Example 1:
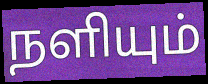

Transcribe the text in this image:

நளியும்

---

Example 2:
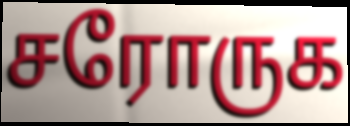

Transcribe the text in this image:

சரோருக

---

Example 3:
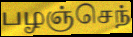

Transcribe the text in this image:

பழஞ்செந்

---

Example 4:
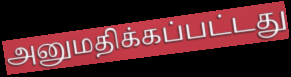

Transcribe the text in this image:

அனுமதிக்கப்பட்டது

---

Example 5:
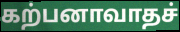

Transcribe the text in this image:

கற்பனாவாதச்